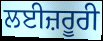
ਲਈਜ਼ਰੂਰੀ